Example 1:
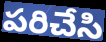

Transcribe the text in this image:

పరిచేసి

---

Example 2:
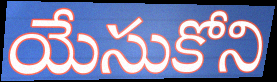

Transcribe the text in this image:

యేసుకోని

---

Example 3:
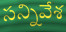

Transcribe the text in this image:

సన్నివేశ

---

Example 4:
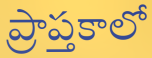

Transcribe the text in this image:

ప్రాప్తకాలో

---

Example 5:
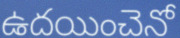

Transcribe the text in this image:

ఉదయించెనో